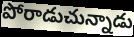
పోరాడుచున్నాడు